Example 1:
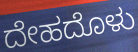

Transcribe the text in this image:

ದೇಹದೊಳು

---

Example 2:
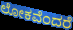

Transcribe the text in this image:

ಲೋಕವೆಂದರೆ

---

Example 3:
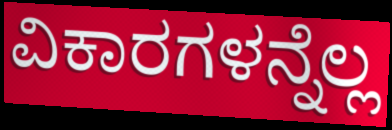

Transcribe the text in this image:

ವಿಕಾರಗಳನ್ನೆಲ್ಲ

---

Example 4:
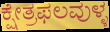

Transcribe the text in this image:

ಕ್ಷೇತ್ರಫಲವುಳ್ಳ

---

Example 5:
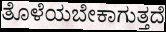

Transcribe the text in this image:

ತೊಳೆಯಬೇಕಾಗುತ್ತದೆ